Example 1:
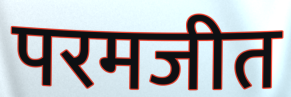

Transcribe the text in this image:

परमजीत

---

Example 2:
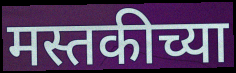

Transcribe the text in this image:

मस्तकीच्या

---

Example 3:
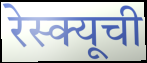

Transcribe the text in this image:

रेस्क्यूची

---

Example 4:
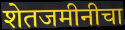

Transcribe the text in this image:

शेतजमीनीचा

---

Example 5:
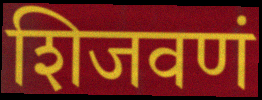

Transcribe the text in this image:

शिजवणं